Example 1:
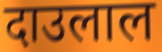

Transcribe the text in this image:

दाउलाल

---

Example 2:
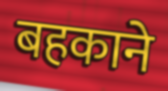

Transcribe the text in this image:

बहकाने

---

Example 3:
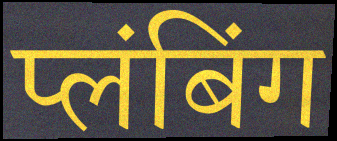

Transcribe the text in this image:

प्लंबिंग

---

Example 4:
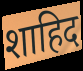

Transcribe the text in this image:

शाहिद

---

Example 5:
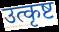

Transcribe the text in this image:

उत्कृष्ट